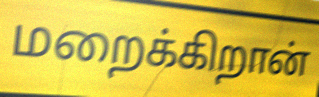
மறைக்கிறான்